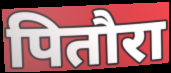
पितौरा